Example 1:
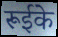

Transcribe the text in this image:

रूईके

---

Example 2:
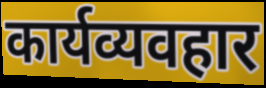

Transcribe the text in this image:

कार्यव्यवहार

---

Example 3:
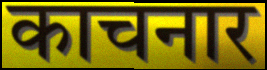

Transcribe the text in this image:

काचनार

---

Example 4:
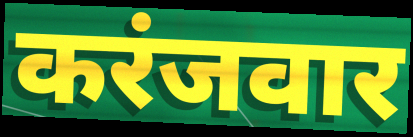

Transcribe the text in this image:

करंजवार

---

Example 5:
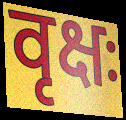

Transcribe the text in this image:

वृक्षः